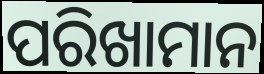
ପରିଖାମାନ